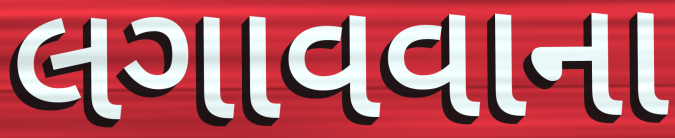
લગાવવાના